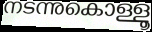
നടന്നുകൊള്ളൂ